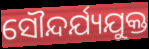
ସୌନ୍ଦର୍ଯ୍ୟଯୁକ୍ତ